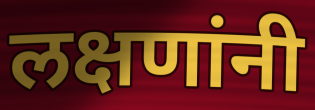
लक्षणांनी